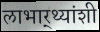
लाभार्थ्यांशी